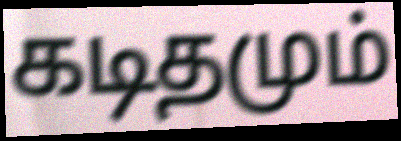
கடிதமும்